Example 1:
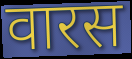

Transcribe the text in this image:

वारस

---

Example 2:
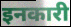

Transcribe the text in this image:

इनकारी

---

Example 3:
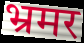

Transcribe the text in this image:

भ्रमर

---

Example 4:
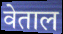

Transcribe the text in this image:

वेताल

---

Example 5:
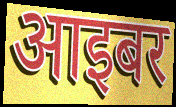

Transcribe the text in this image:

आइबर